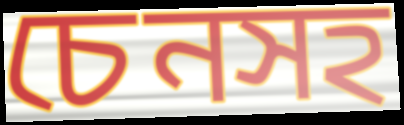
চেনসহ